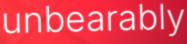
unbearably